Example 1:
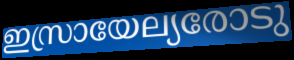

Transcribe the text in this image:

ഇസ്രായേല്യരോടു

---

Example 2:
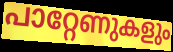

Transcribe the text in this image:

പാറ്റേണുകളും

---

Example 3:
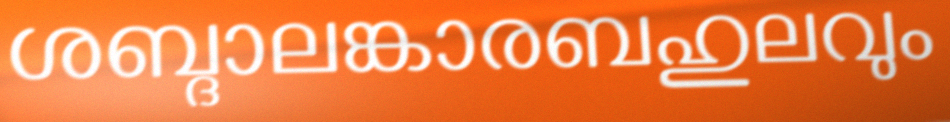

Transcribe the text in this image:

ശബ്ദാലങ്കാരബഹുലവും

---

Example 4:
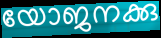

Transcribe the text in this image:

യോജനക്കു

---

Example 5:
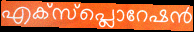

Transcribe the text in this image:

എക്സ്പ്ലൊറേഷൻ